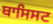
ਬਾਸਿਸਟ